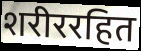
शरीररहित